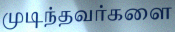
முடிந்தவர்களை